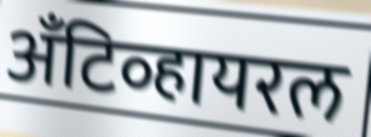
अँटिव्हायरल